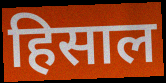
हिसाल